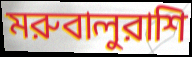
মরুবালুরাশি